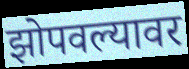
झोपवल्यावर